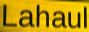
Lahaul